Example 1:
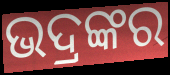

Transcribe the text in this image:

ଭଦ୍ରଙ୍କର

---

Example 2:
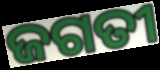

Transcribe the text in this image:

ଜଗତୀ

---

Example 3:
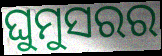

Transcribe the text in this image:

ଘୁମୁସରର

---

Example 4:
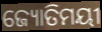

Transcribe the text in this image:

ଜ୍ୟୋତିମୟୀ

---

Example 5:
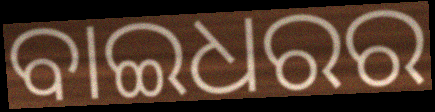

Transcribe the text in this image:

ବାଇଧରର